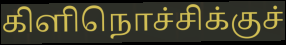
கிளிநொச்சிக்குச்